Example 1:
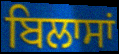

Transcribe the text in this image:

ਬਿਲਾਸਾਂ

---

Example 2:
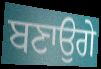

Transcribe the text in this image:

ਬਣਾਉਗੇ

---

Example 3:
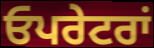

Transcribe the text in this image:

ਓਪਰੇਟਰਾਂ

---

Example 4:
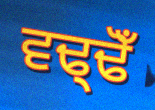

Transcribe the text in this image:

ਵਢ੍ਢੋਁ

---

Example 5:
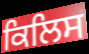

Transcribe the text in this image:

ਕਿਲਿਸ